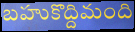
బహుకొద్దిమంది